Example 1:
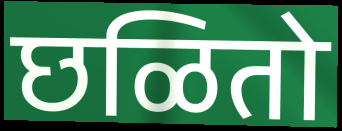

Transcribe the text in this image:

छळितो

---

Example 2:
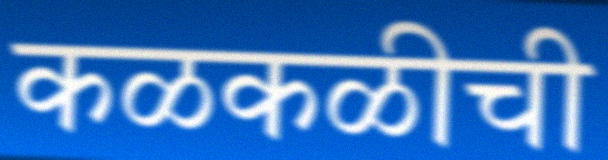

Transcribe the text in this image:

कळकळीची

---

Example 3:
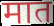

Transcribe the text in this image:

मात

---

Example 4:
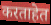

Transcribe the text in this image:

करताहेत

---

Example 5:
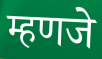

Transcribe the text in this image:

म्हणजे